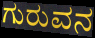
ಗುರುವನ